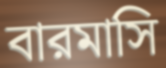
বারমাসি